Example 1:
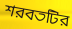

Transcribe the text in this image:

শরবতটির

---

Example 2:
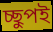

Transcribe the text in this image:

চ্ছুপই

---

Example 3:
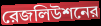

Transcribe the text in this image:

রেজলিউশনের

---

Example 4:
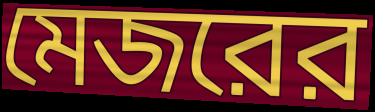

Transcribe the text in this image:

মেজরের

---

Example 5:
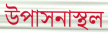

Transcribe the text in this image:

উপাসনাস্থল